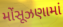
મોંસૂઝણામાં